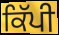
ਕਿੱਪੀ